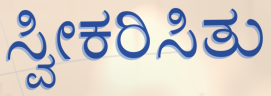
ಸ್ವೀಕರಿಸಿತು